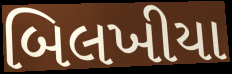
બિલખીયા